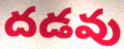
దడవు